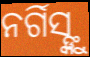
ନର୍ଗିସ୍ଙ୍କୁ